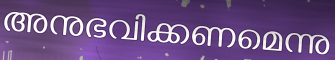
അനുഭവിക്കണമെന്നു